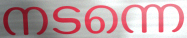
നടന്നെ